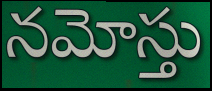
నమోస్తు